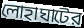
লোহাঘাটের